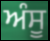
ਅੰਸੂ